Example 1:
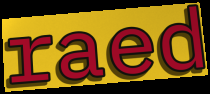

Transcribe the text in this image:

raed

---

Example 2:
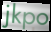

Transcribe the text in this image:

jkpo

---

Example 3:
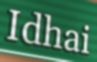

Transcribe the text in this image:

Idhai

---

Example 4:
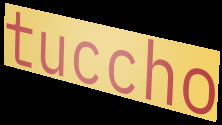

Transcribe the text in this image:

tuccho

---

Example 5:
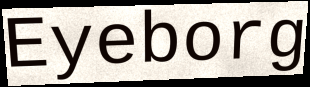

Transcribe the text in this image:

Eyeborg